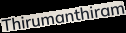
Thirumanthiram